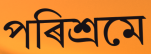
পৰিশ্ৰমে